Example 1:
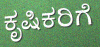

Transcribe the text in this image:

ಕೃಷಿಕರಿಗೆ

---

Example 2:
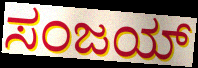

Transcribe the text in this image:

ಸಂಜಯ್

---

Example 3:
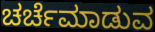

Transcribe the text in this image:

ಚರ್ಚೆಮಾಡುವ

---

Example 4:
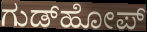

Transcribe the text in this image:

ಗುಡ್‌ಹೋಪ್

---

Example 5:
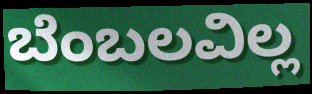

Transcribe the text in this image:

ಬೆಂಬಲವಿಲ್ಲ